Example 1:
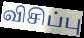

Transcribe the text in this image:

விசிப்பு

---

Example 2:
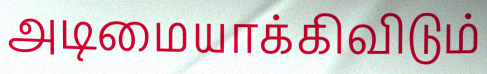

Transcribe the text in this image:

அடிமையாக்கிவிடும்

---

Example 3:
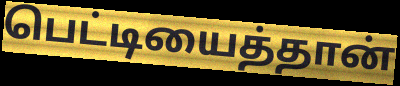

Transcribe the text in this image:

பெட்டியைத்தான்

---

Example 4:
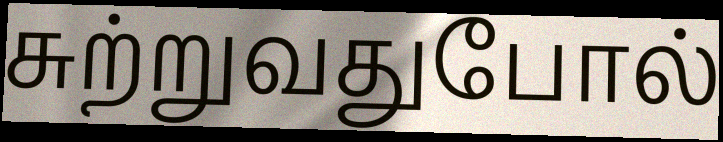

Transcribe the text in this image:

சுற்றுவதுபோல்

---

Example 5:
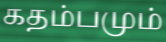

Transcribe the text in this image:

கதம்பமும்